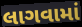
લાગવામાં